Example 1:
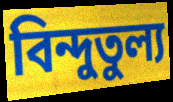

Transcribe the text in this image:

বিন্দুতুল্য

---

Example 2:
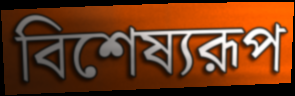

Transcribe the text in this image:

বিশেষ্যরূপ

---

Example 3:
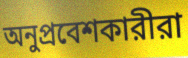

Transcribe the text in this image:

অনুপ্রবেশকারীরা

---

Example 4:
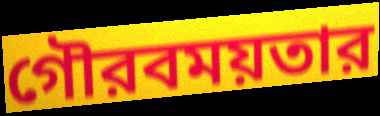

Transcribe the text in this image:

গৌরবময়তার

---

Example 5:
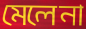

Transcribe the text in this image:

মেলেনা